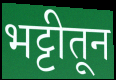
भट्टीतून